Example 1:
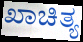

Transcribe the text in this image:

ಖಾಚಿತ್ಯ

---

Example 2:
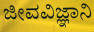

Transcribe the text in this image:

ಜೀವವಿಜ್ಞಾನಿ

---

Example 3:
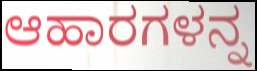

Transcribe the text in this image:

ಆಹಾರಗಳನ್ನ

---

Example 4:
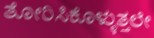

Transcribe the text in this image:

ತೋರಿಸಿಕೊಳ್ಳುತ್ತಲೇ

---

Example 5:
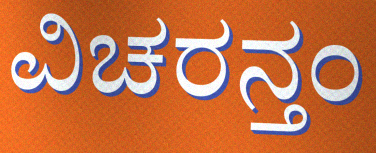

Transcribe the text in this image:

ವಿಚರನ್ತಂ